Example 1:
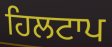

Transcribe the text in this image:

ਹਿਲਟਾਪ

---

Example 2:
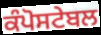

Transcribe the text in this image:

ਕੰਪੋਸਟੇਬਲ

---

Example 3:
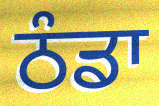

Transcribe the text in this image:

ਠੰਡਾ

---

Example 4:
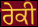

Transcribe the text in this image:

ਰੇਕੀ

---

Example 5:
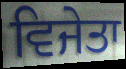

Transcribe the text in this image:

ਵਿਜੇਤਾ